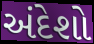
અંદેશો